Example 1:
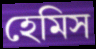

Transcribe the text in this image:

হেমিস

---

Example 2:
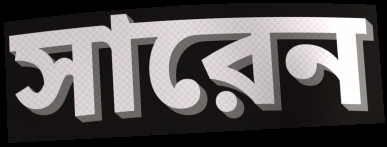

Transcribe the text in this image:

সারেন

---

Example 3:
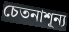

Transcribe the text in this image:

চেতনাশূন্য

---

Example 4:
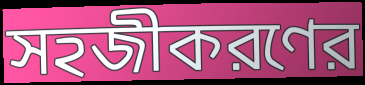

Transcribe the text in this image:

সহজীকরণের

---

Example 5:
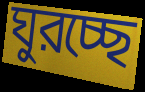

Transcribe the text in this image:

ঘুরচ্ছে